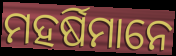
ମହର୍ଷିମାନେ